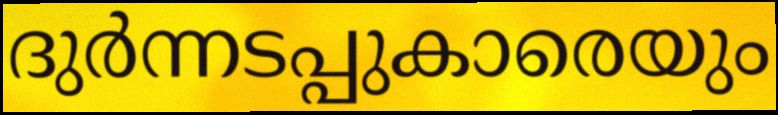
ദുർന്നടപ്പുകാരെയും